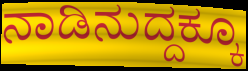
ನಾಡಿನುದ್ದಕ್ಕೂ